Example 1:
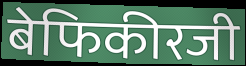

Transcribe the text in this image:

बेफिकीरजी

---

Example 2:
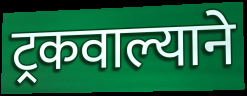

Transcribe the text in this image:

ट्रकवाल्याने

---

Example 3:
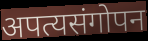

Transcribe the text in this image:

अपत्यसंगोपन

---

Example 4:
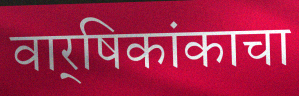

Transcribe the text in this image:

वार्षिकांकाचा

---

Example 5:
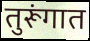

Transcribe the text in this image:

तुरूंगात